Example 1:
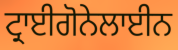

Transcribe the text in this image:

ਟ੍ਰਾਈਗੋਨੇਲਾਈਨ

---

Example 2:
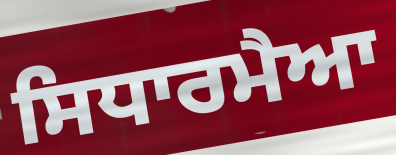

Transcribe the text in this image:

ਸਿਧਾਰਮੈਆ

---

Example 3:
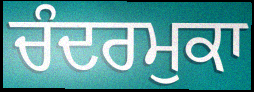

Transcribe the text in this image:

ਚੰਦਰਮੁਕਾ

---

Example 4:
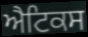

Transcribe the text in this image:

ਐਟਿਕਸ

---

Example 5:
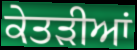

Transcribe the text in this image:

ਕੇਤੜੀਆਂ